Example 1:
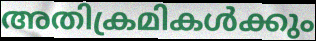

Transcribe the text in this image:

അതിക്രമികൾക്കും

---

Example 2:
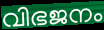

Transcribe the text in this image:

വിഭജനം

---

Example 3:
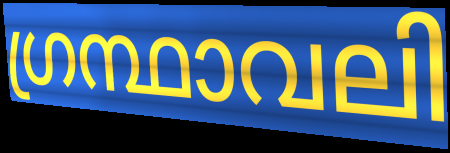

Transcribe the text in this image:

ഗ്രന്ഥാവലി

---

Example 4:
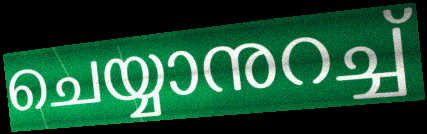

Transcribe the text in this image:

ചെയ്യാനുറച്ച്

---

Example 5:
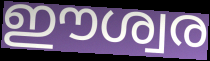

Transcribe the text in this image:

ഈശ്വര